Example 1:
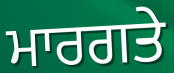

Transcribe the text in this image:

ਮਾਰਗਤੇ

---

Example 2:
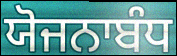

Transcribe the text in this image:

ਯੋਜਨਾਬੰਧ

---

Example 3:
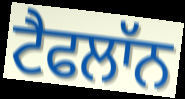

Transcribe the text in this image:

ਟੈਫਲਾੱਨ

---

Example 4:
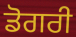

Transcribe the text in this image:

ਡੋਗਰੀ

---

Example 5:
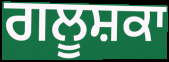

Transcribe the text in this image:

ਗਲੂਸ਼ਕਾ